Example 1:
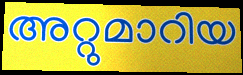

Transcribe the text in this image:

അറ്റുമാറിയ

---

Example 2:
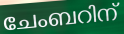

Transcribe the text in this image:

ചേംബറിന്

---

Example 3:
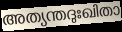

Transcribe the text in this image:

അത്യന്തദുഃഖിതാ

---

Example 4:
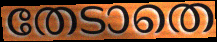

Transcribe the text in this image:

തേടാതെ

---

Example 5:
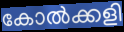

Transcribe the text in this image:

കോൽക്കളി